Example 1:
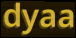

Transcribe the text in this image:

dyaa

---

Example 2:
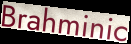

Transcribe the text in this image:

Brahminic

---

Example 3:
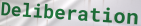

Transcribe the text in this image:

Deliberation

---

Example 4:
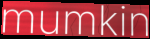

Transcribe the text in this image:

mumkin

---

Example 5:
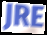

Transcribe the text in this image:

JRE